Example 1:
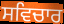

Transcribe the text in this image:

ਸਵਿਚਾਰ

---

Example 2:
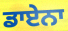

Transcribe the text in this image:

ਡਾਏਨਾ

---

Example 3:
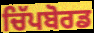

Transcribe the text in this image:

ਚਿੱਪਬੋਰਡ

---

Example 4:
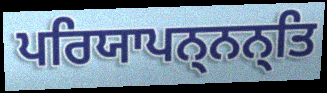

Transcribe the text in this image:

ਪਰਿਯਾਪਨ੍ਨਨ੍ਤਿ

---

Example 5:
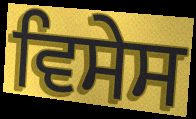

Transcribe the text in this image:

ਵਿਸੇਸ